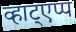
व्हाट्एप्प